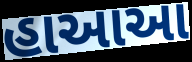
હાઆઆ